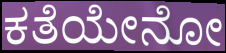
ಕತೆಯೇನೋ